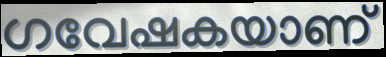
ഗവേഷകയാണ്